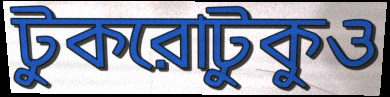
টুকরোটুকুও